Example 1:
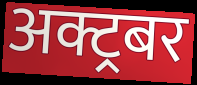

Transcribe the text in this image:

अक्ट्रबर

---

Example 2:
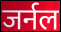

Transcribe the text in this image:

जर्नल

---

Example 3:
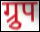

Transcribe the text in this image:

ग्र्रुप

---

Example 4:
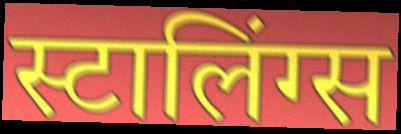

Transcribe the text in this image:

स्टालिंग्स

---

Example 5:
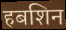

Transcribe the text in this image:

हबशिन